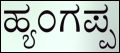
ಹ್ಯಂಗಪ್ಪ